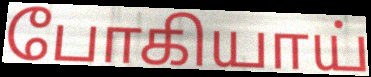
போகியாய்